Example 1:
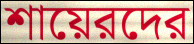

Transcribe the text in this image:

শায়েরদের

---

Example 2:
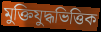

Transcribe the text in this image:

মুক্তিযুদ্ধভিত্তিক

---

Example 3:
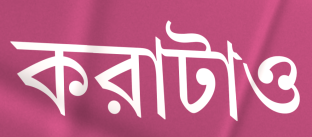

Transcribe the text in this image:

করাটাও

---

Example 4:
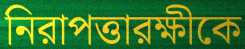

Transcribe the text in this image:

নিরাপত্তারক্ষীকে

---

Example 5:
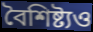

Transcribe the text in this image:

বৈশিষ্ট্যও